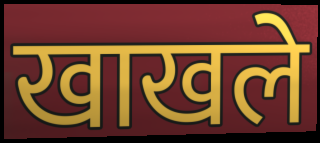
खाखले